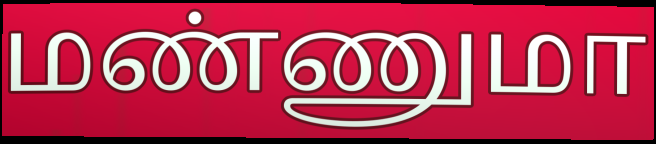
மண்ணுமா